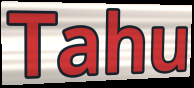
Tahu